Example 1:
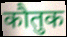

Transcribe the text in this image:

कौतुक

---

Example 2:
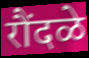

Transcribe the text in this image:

रौंदळे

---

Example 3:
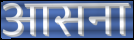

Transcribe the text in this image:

आसना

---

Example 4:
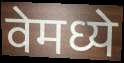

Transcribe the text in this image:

वेमध्ये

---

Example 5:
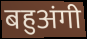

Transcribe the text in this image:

बहुअंगी